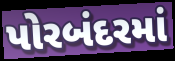
પોરબંદરમાં